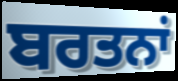
ਬਰਤਨਾਂ